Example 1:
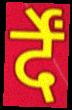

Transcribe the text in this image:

र्दें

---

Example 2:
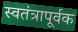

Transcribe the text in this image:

स्वतंत्रापूर्वक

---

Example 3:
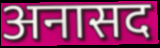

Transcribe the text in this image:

अनासद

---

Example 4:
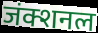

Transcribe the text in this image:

जंक्शनल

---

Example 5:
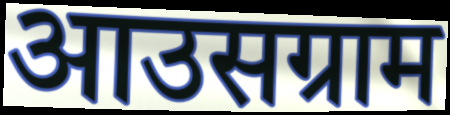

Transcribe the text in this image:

आउसग्राम